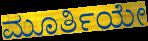
ಮೂರ್ತಿಯೇ